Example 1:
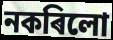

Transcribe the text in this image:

নকৰিলো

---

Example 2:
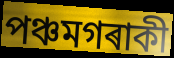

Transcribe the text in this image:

পঞ্চমগৰাকী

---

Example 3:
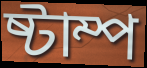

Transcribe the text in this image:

ষ্টাম্প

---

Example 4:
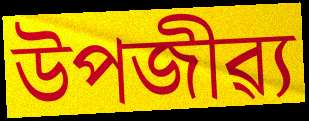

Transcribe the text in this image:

উপজীৱ্য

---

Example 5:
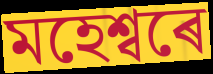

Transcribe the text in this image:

মহেশ্বৰে